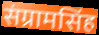
संग्रामसिंह